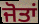
ਜੋਤਾਂ